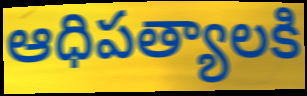
ఆధిపత్యాలకి